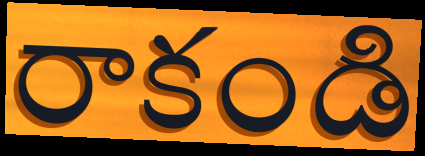
రాకండి